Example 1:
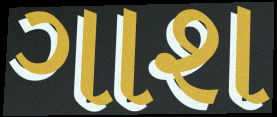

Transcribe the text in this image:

ગાશ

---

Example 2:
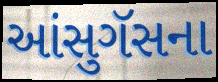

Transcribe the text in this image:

આંસુગૅસના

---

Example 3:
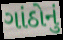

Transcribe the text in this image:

ગાંઠોનું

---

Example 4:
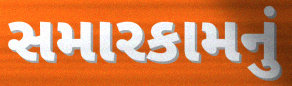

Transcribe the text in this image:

સમારકામનું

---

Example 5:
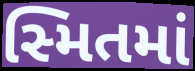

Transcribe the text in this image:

સ્મિતમાં